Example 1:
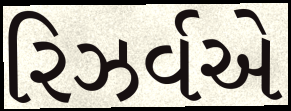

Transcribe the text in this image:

રિઝર્વએ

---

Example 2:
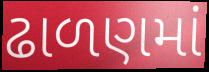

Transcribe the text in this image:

ઢાળણમાં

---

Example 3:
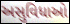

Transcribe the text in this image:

અસુવિધાઓ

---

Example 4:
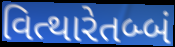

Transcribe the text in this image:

વિત્થારેતબ્બં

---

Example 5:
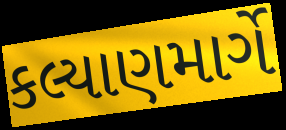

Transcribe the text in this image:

કલ્યાણમાર્ગે